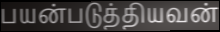
பயன்படுத்தியவன்